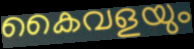
കൈവളയും